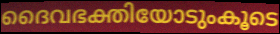
ദൈവഭക്തിയോടുംകൂടെ